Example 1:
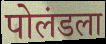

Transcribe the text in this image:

पोलंडला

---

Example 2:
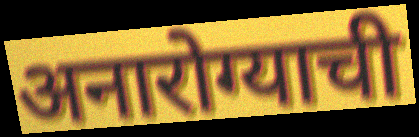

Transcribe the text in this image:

अनारोग्याची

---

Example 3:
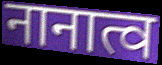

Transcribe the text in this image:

नानात्व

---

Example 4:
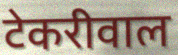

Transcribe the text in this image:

टेकरीवाल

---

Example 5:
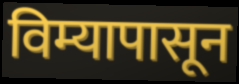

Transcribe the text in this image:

विम्यापासून